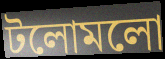
টলোমলো